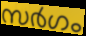
സർഗം